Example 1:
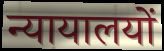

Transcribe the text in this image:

न्यायालयों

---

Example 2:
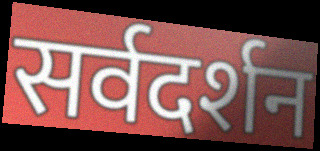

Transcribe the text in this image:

सर्वदर्शन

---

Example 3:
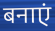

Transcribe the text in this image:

बनाएं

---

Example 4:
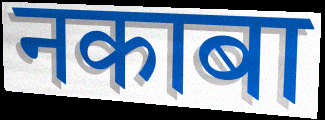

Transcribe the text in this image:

नकाबा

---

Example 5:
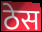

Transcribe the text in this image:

ठेस